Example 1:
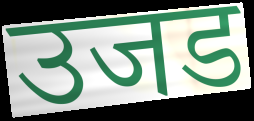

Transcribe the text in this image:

उजड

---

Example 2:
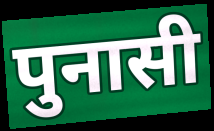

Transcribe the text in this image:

पुनासी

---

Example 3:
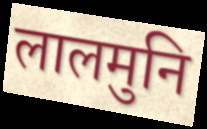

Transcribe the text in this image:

लालमुनि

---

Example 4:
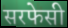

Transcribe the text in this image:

सरफेसी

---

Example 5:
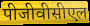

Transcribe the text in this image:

पीजीवीसीएल